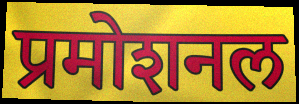
प्रमोशनल